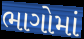
ભાગોમાં